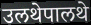
उलथेपालथे